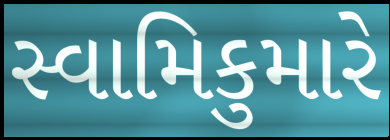
સ્વામિકુમારે